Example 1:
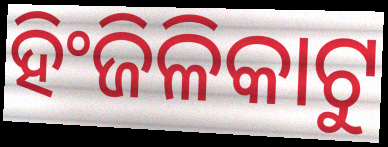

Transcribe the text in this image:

ହିଂଜିଳିକାଟୁ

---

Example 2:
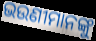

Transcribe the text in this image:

ଭଉଣୀମାନଙ୍କୁ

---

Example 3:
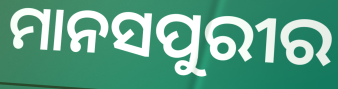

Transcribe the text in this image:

ମାନସପୁରୀର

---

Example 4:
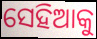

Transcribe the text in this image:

ସେହିଆକୁ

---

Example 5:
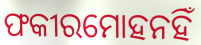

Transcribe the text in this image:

ଫକୀରମୋହନହିଁ